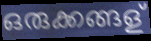
ഒരുക്കങ്ങള്